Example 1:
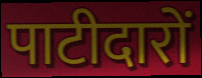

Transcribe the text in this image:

पाटीदारों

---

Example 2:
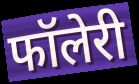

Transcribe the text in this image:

फॉलेरी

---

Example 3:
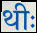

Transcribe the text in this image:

थीः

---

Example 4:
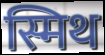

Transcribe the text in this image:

स्मिथ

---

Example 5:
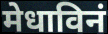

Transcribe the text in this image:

मेधाविनं